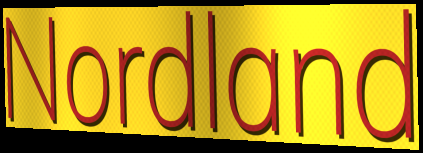
Nordland